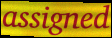
assigned